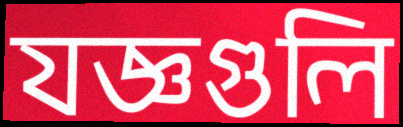
যজ্ঞগুলি